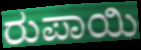
ರುಪಾಯಿ